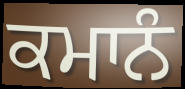
ਕਮਾਨੰ